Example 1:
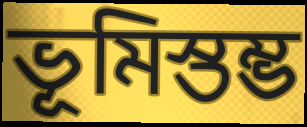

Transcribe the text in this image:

ভূমিস্তম্ভ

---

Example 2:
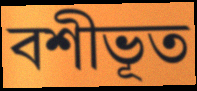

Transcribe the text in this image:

বশীভূত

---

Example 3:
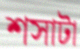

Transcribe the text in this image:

শসাটা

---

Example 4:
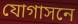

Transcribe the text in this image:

যোগাসনে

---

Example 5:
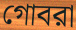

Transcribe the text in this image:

গোবরা